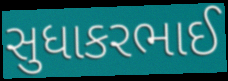
સુધાકરભાઈ